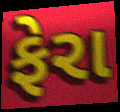
ફેરા